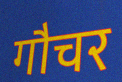
गौचर